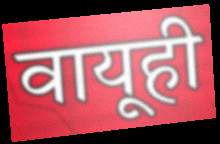
वायूही